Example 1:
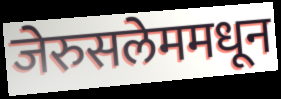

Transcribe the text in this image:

जेरुसलेममधून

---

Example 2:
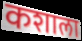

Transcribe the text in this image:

कशाला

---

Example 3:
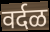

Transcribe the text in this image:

वर्दळ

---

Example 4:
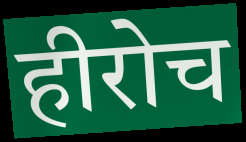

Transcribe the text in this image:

हीरोच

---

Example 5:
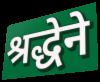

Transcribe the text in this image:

श्रद्धेने